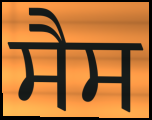
ਸੈਸ